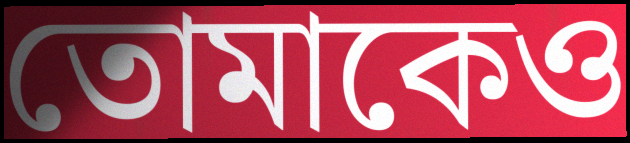
তোমাকেও